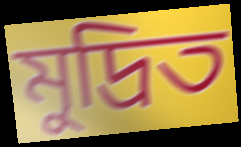
মুদ্রিত